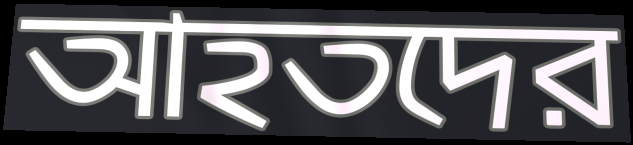
আহতদের